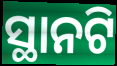
ସ୍ଥାନଟି